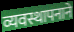
व्यवस्थापनाने